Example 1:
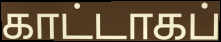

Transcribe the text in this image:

காட்டாகப்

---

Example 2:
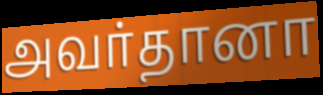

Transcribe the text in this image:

அவர்தானா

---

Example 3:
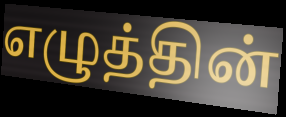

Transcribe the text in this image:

எழுத்தின்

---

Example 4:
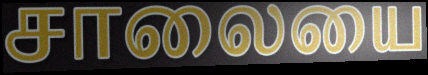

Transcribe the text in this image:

சாலையை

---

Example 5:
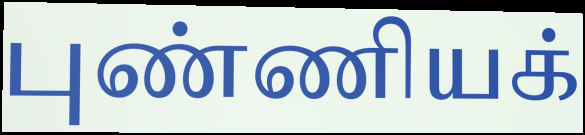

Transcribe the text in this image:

புண்ணியக்